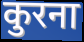
कुरना